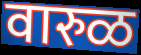
वारुळ